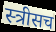
स्त्रीसच